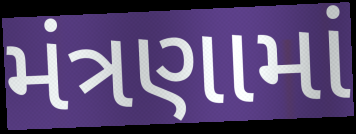
મંત્રણામાં